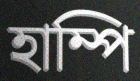
হাম্পি